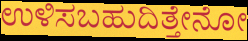
ಉಳಿಸಬಹುದಿತ್ತೇನೋ